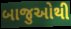
બાજુઓથી